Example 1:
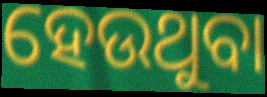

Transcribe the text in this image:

ହେଉଥୁବା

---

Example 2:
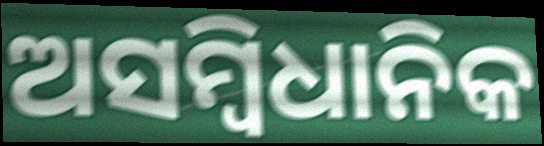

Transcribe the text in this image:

ଅସମ୍ବିଧାନିକ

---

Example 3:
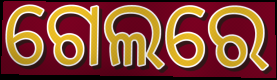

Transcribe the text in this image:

ଗେଲରେ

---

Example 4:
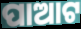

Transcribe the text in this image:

ପାଆଟ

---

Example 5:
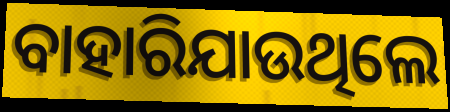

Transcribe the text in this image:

ବାହାରିଯାଉଥିଲେ